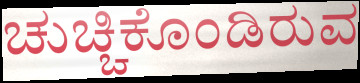
ಚುಚ್ಚಿಕೊಂಡಿರುವ